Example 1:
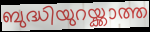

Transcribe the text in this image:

ബുദ്ധിയുറയ്ക്കാത്ത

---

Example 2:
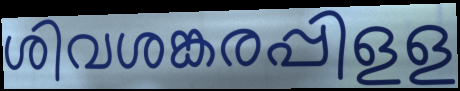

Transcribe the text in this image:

ശിവശങ്കരപ്പിളള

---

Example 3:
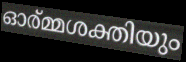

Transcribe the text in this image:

ഓര്മ്മശക്തിയും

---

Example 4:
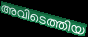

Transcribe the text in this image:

അവിടെത്തിയ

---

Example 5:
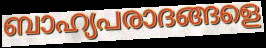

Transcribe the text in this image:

ബാഹ്യപരാദങ്ങളെ